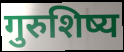
गुरुशिष्य